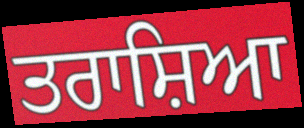
ਤਰਾਸ਼ਿਆ